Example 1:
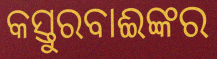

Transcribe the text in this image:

କସ୍ତୁରବାଈଙ୍କର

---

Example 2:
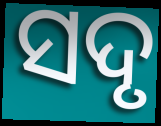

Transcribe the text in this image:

ସଦୃ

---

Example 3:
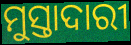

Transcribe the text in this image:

ମୁସ୍ତାଦାରୀ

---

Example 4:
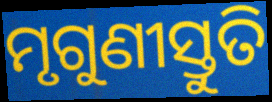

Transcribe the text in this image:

ମୃଗୁଣୀସ୍ତୁତି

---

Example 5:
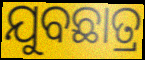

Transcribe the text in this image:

ଯୁବଛାତ୍ର